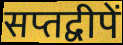
सप्तद्वीपें